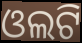
ଓଲଟି